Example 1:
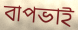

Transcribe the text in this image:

বাপভাই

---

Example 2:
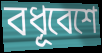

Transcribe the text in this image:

বধূবেশে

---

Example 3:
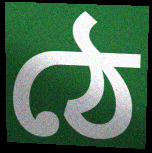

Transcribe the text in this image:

ঠে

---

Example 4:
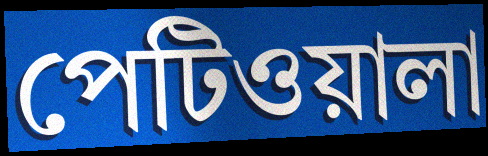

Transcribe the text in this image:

পেটিওয়ালা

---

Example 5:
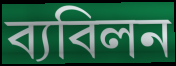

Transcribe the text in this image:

ব্যবিলন